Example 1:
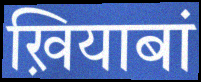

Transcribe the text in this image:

ख़ियाबां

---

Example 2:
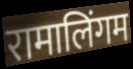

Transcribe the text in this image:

रामालिंगम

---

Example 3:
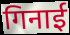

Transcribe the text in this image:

गिनाई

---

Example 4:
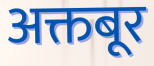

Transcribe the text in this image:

अक्तबूर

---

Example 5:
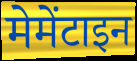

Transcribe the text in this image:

मेमेंटाइन